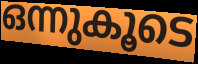
ഒന്നുകൂടെ